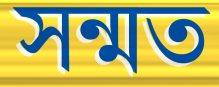
সন্মত